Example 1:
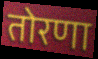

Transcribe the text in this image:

तोरणा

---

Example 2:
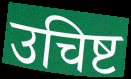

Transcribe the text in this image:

उचिष्ट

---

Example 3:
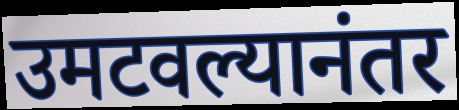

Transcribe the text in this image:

उमटवल्यानंतर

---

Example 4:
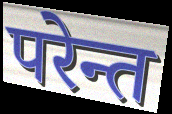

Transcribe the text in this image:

परेन्त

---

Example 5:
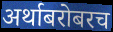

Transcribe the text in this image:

अर्थाबरोबरच